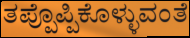
ತಪ್ಪೊಪ್ಪಿಕೊಳ್ಳುವಂತೆ